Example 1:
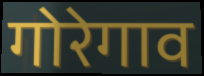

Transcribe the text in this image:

गोरेगाव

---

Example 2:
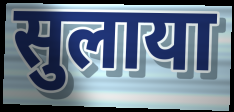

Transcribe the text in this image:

सुलाया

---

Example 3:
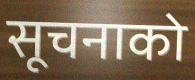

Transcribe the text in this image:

सूचनाको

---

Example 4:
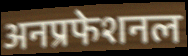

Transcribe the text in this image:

अनप्रफेशनल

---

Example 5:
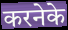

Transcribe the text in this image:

करनेके